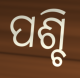
ପଶ୍ଚି